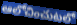
ఆలోచించుటలో